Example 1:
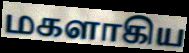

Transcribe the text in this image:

மகளாகிய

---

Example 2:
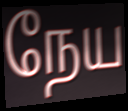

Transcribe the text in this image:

நேய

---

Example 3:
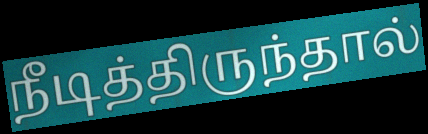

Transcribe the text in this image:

நீடித்திருந்தால்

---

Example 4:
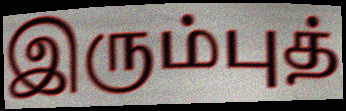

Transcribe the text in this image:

இரும்புத்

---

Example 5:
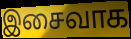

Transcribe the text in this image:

இசைவாக